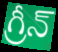
గ్రీన్